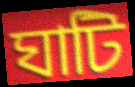
ঘাটি